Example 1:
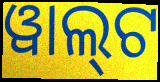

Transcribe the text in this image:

ୱାଲ୍‌ଟ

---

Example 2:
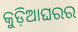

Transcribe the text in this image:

କୁଡ଼ିଆଘରର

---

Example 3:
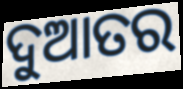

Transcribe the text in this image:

ଦୁଆତର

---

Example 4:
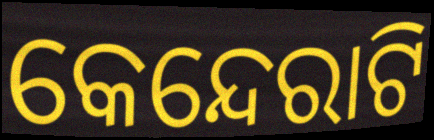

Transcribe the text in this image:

କେନ୍ଦେରାଟି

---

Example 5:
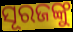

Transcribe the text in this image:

ସୂରଜଙ୍କୁ